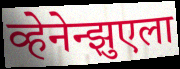
व्हेनेन्झुएला